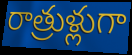
రాత్రుళ్లుగా